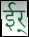
ईर्